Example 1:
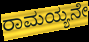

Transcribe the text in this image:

ರಾಮಯ್ಯನೇ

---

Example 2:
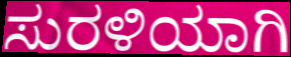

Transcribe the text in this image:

ಸುರಳಿಯಾಗಿ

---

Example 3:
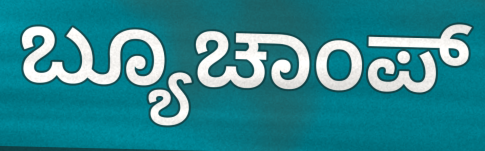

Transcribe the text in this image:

ಬ್ಯೂಚಾಂಪ್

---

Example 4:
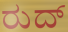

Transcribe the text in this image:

ರುದ್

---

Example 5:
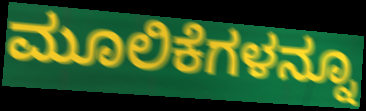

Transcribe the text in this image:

ಮೂಲಿಕೆಗಳನ್ನೂ